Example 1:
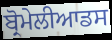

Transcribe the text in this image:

ਬ੍ਰੋਮੇਲੀਆਡਸ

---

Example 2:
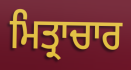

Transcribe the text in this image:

ਮਿਤ੍ਰਾਚਾਰ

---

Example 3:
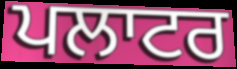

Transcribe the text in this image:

ਪਲਾਟਰ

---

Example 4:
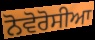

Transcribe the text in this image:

ਨੋਵੋਰੋਸੀਆ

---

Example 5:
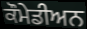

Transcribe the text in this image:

ਕੌਮੇਡੀਅਨ